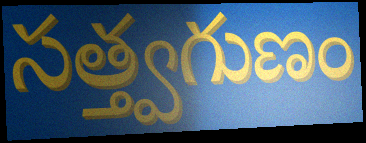
సత్త్వగుణం